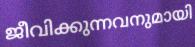
ജീവിക്കുന്നവനുമായി